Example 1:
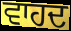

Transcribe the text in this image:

ਵਾਹਦ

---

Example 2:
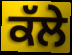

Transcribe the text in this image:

ਕੱਲੇ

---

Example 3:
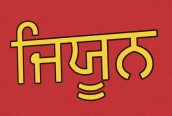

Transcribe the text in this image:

ਜਿਯੂਨ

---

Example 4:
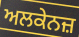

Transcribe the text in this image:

ਅਲਕੇਨਜ਼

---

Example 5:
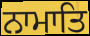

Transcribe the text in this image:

ਨਾਮਾਤਿ